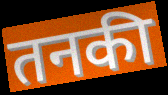
तनकी